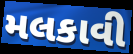
મલકાવી